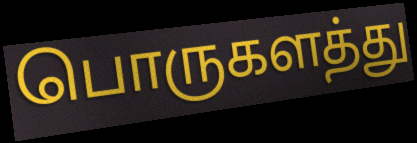
பொருகளத்து